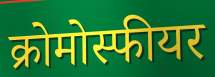
क्रोमोस्फीयर